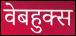
वेबहुक्स